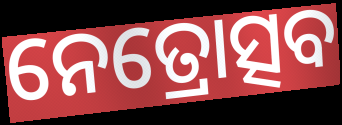
ନେତ୍ରୋତ୍ସବ